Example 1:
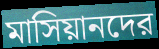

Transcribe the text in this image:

মাসিয়ানদের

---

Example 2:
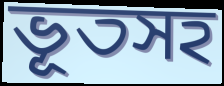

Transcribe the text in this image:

ভূতসহ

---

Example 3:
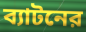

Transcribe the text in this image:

ব্যাটনের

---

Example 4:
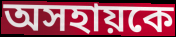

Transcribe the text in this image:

অসহায়কে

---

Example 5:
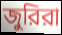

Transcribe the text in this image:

জুরিরা